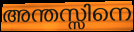
അന്തസ്സിനെ